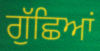
ਗੁੱਛਿਆਂ